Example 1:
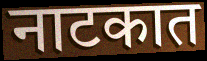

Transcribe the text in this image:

नाटकात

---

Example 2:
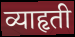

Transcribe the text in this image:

व्याहृती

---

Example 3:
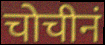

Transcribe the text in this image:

चोचीनं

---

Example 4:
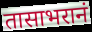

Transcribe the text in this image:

तासाभरानं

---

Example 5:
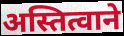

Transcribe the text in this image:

अस्तित्वाने